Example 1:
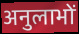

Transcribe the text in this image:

अनुलाभों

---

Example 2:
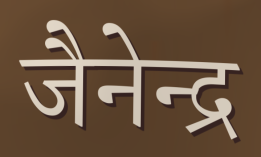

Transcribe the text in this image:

जैनेन्द्र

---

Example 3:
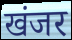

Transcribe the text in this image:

खंजर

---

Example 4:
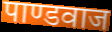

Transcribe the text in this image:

पाण्डवाज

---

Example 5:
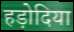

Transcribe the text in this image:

हड़ोदिया